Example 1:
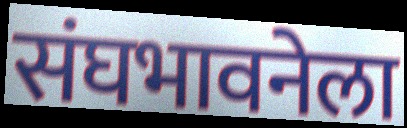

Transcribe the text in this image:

संघभावनेला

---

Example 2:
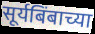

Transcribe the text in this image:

सूर्यबिंबाच्या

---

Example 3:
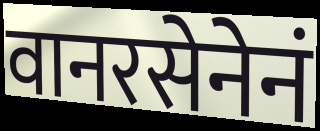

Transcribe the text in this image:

वानरसेनेनं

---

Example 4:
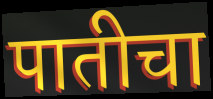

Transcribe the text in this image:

पातीचा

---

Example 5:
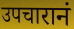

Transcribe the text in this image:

उपचारानं